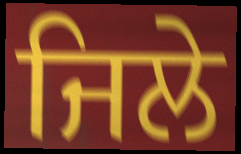
ਜਿਲੇ